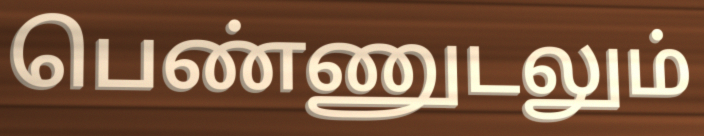
பெண்ணுடலும்